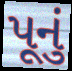
પૂનું